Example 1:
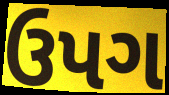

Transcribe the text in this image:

ઉપગ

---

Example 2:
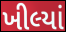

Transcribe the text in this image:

ખીલ્યાં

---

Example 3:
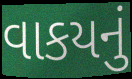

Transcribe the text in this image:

વાકયનું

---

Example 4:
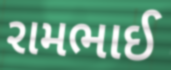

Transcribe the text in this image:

રામભાઈ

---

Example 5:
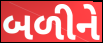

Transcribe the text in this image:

બળીને